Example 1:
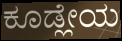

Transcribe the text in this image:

ಕೂಡ್ಲೇಯ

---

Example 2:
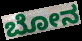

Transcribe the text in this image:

ಬೋನ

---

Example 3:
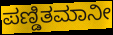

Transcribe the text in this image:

ಪಣ್ಡಿತಮಾನೀ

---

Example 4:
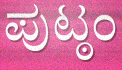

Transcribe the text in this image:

ಪುಟ್ಠಂ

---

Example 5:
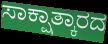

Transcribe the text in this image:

ಸಾಕ್ಷಾತ್ಕಾರದ